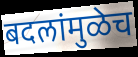
बदलांमुळेच